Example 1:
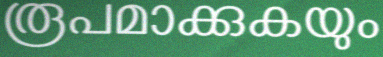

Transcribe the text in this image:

രൂപമാക്കുകയും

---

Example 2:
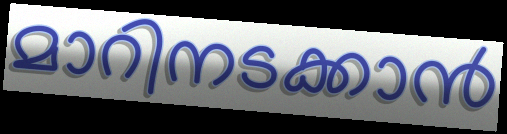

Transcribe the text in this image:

മാറിനടക്കാൻ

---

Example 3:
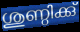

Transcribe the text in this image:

ശുണ്ഠിക്കു്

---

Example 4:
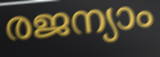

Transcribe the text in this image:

രജന്യാം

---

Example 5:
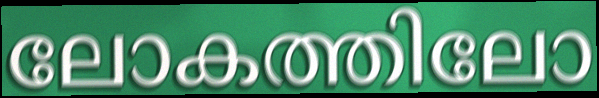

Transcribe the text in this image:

ലോകത്തിലോ